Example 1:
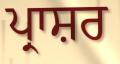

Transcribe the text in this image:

ਪ੍ਰਾਸ਼ਰ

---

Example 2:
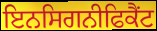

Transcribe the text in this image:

ਇਨਸਿਗਨੀਫਿਕੈਂਟ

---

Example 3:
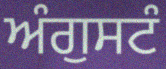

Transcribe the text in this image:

ਅੰਗੁਸਟੰ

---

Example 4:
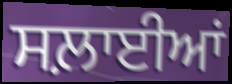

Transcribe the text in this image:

ਸਲ਼ਾਈਆਂ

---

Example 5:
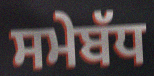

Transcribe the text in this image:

ਸਮੇਬੱਧ